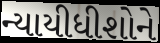
ન્યાયીધીશોને